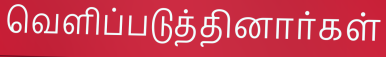
வெளிப்படுத்தினார்கள்